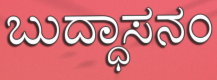
ಬುದ್ಧಾಸನಂ